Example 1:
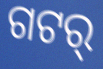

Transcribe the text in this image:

ଗଟର୍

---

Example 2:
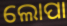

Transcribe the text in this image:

ଲୋପା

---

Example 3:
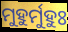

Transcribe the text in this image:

ମୁହୁର୍ମୁହୁଃ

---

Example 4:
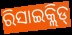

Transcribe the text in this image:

ରିସାଇକ୍ଲିଡ୍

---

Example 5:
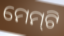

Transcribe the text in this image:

ମେମ୍‍ଟି